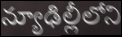
న్యూఢిల్లీలోని